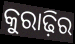
କୁରାଢ଼ିର